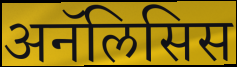
अनॅलिसिस